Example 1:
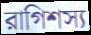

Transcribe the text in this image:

রাগিশস্য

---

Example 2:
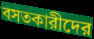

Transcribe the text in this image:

বসতকারীদের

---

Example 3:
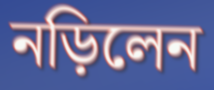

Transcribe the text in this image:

নড়িলেন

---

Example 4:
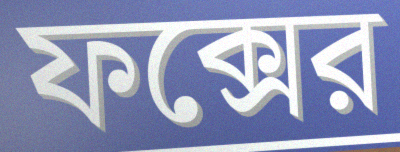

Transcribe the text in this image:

ফক্সের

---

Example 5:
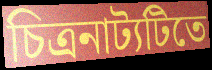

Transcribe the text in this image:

চিত্রনাট্যটিতে